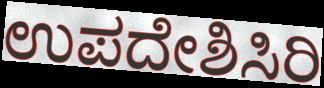
ಉಪದೇಶಿಸಿರಿ